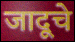
जादूचे